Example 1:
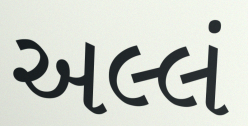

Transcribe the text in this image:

અલ્લં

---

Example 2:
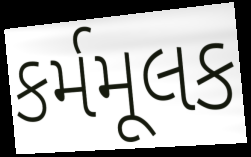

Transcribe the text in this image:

કર્મમૂલક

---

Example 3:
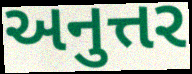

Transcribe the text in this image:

અનુત્તર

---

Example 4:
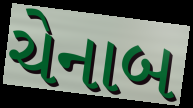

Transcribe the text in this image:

ચેનાબ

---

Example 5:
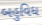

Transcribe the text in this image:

બહુવિધ